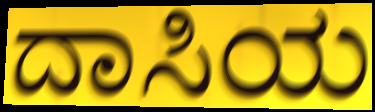
ದಾಸಿಯ